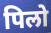
पिलो